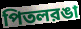
পিতলরঙা